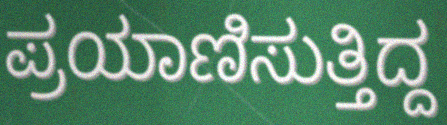
ಪ್ರಯಾಣಿಸುತ್ತಿದ್ದ